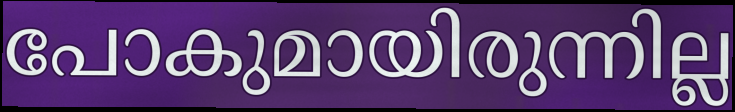
പോകുമായിരുന്നില്ല